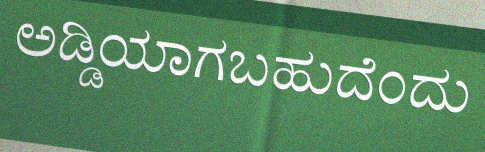
ಅಡ್ಡಿಯಾಗಬಹುದೆಂದು